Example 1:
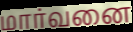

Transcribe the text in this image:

மார்வனை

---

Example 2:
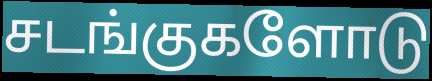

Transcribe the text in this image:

சடங்குகளோடு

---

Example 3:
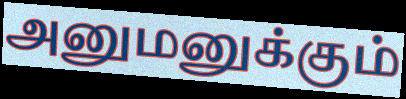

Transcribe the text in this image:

அனுமனுக்கும்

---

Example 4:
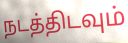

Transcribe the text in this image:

நடத்திடவும்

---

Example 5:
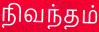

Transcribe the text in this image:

நிவந்தம்